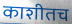
काशीतच